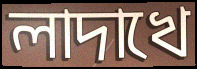
লাদাখে